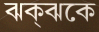
ঝক্ঝকে